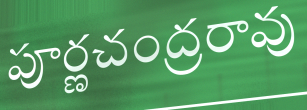
పూర్ణచంద్రరావు